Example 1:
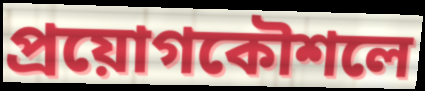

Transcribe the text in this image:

প্রয়োগকৌশলে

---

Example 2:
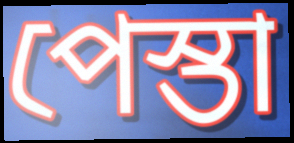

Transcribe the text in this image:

পেস্তা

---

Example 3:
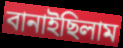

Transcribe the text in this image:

বানাইছিলাম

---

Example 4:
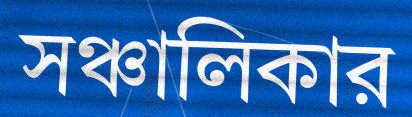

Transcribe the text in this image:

সঞ্চালিকার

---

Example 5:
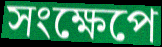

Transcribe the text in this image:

সংক্ষেপে